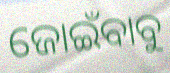
ଜୋଇଁବାବୁ